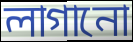
লাগানো